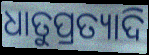
ଧାତୁପ୍ରତ୍ୟାଦି